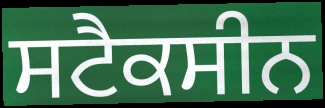
ਸਟੈਕਸੀਨ